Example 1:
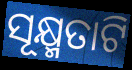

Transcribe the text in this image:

ସୂକ୍ଷ୍ମତାଟି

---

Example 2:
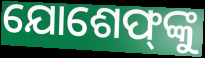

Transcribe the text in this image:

ଯୋଶେଫ୍‌ଙ୍କୁ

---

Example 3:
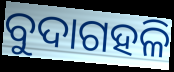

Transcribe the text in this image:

ବୁଦାଗହଳି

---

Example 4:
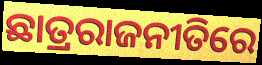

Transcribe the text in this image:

ଛାତ୍ରରାଜନୀତିରେ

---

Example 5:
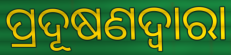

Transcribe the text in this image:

ପ୍ରଦୂଷଣଦ୍ବାରା